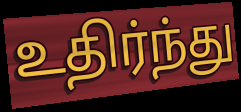
உதிர்ந்து